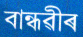
বান্ধৱীৰ